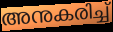
അനുകരിച്ച്